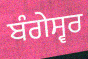
ਬੰਗੇਸ੍ਵਰ